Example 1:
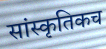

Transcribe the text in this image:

सांस्कृतिकच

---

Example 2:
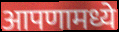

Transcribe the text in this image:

आपणामध्ये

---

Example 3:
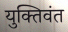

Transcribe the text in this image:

युक्तिवंत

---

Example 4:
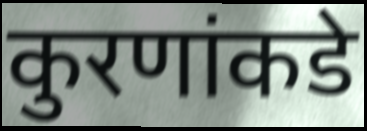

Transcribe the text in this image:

कुरणांकडे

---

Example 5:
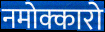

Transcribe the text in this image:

नमोक्कारो